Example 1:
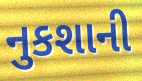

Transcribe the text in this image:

નુકશાની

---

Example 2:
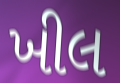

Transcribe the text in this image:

ખીલ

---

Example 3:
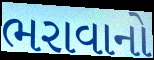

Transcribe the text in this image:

ભરાવાનો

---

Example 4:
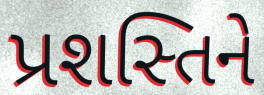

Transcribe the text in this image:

પ્રશસ્તિને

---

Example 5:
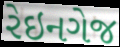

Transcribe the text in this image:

રેઇનગેજ